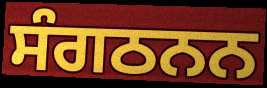
ਸੰਗਠਨਨ